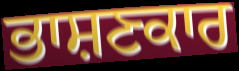
ਭਾਸ਼ਣਕਾਰ